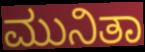
ಮುನಿತಾ